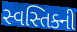
સ્વસ્તિક્ની